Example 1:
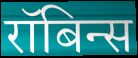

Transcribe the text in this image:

रॉबिन्स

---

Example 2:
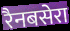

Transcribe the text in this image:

रैनबसेरा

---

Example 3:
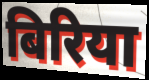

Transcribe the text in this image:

बिरिया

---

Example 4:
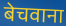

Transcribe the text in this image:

बेचवाना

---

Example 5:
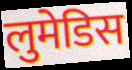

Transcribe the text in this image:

लुमेडिस